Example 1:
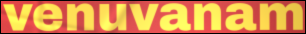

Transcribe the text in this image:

venuvanam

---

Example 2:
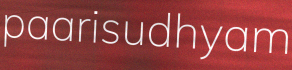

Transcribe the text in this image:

paarisudhyam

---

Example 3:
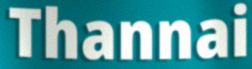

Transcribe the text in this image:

Thannai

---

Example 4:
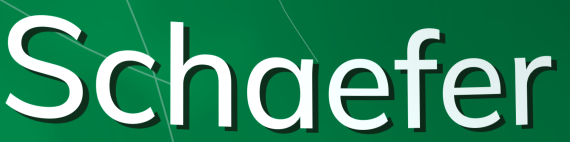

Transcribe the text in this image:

Schaefer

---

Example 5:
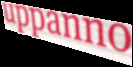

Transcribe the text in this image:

uppanno